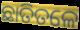
ଛାତିତଳେ